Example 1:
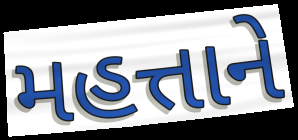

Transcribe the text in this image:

મહત્તાને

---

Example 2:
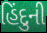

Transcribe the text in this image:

હિંદુની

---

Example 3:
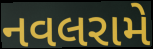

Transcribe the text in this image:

નવલરામે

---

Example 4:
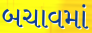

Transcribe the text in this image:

બચાવમાં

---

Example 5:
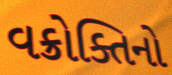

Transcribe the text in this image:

વક્રોક્તિનો